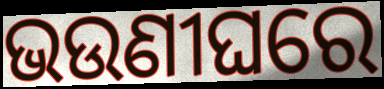
ଭଉଣୀଘରେ